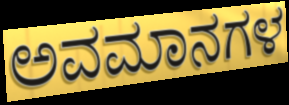
ಅವಮಾನಗಳ